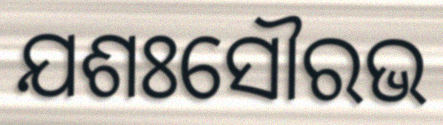
ଯଶଃସୌରଭ